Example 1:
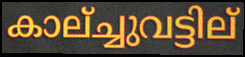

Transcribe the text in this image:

കാല്ച്ചുവട്ടില്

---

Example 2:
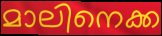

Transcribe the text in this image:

മാലിനെക്ക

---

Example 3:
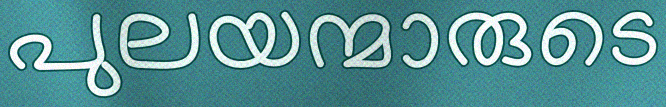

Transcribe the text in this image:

പുലയന്മാരുടെ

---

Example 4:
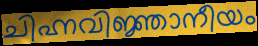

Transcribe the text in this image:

ചിഹ്നവിജ്ഞാനീയം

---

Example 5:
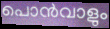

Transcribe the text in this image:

പൊൻവാളും